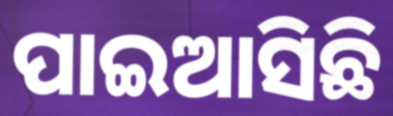
ପାଇଆସିଛି